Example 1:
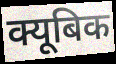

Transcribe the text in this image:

क्यूबिक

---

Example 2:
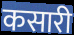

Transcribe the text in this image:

कसारी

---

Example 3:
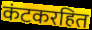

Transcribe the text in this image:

कंटकरहित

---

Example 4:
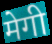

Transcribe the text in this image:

मेगी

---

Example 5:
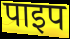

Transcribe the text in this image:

पाइप